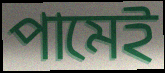
পামেই